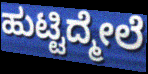
ಹುಟ್ಟಿದ್ಮೇಲೆ